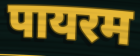
पायरम